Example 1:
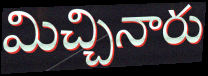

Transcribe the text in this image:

మిచ్చినారు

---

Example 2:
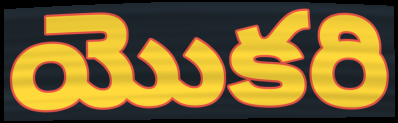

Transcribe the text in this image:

యొకరి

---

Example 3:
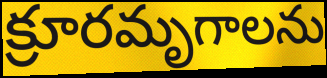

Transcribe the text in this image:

క్రూరమృగాలను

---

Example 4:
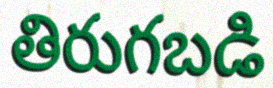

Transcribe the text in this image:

తిరుగబడి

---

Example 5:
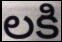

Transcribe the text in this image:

లకి